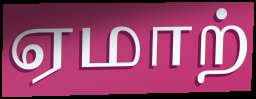
ஏமாற்